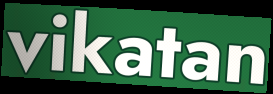
vikatan